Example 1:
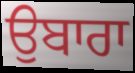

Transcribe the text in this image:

ਉਬਾਰਾ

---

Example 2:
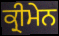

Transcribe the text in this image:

ਕ੍ਰੀਮੇਨ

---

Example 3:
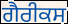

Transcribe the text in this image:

ਗੈਰੀਕਸ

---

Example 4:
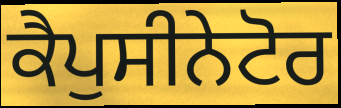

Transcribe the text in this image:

ਕੈਪੁਸੀਨੇਟੋਰ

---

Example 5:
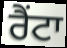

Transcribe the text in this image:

ਰੈਂਟਾ